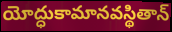
యోద్ధుకామానవస్థితాన్